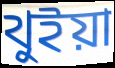
থুইয়া